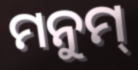
ମନୁମ୍